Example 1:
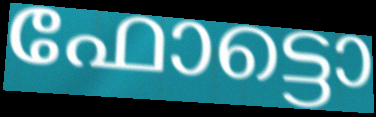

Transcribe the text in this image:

ഫോട്ടൊ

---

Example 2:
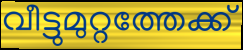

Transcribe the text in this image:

വീട്ടുമുറ്റത്തേക്ക്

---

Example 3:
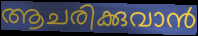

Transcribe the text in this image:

ആചരിക്കുവാൻ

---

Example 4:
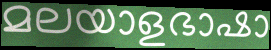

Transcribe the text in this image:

മലയാളഭാഷാ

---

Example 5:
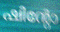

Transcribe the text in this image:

ഷിന്റോ